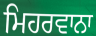
ਮਿਹਰਵਾਨਾ